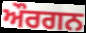
ਔਰਗਨ